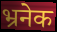
भ्रनेक